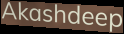
Akashdeep